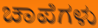
ಚಾಪೆಗಳು